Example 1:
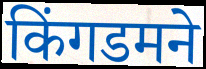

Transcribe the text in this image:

किंगडमने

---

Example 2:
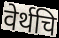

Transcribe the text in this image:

वेर्थचि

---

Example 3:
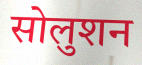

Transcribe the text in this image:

सोलुशन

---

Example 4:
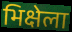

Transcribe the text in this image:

भिक्षेला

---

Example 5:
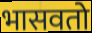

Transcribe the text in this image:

भासवतो